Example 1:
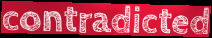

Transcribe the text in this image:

contradicted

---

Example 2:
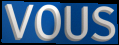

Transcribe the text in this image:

VOUS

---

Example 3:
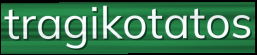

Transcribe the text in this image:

tragikotatos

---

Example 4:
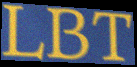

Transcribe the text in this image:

LBT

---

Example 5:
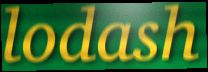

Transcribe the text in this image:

lodash